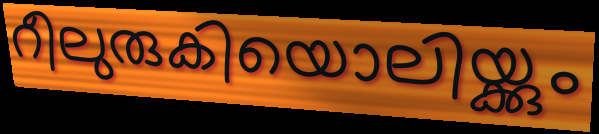
റീലുരുകിയൊലിയ്ക്കും